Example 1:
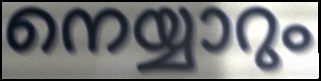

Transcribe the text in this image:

നെയ്യാറും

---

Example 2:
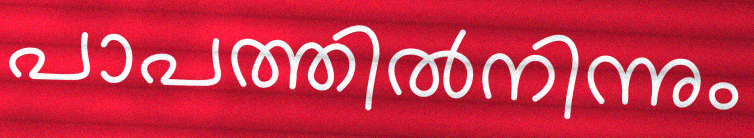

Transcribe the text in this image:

പാപത്തിൽനിന്നും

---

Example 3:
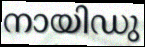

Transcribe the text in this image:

നായിഡു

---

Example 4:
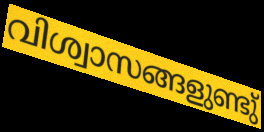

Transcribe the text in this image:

വിശ്വാസങ്ങളുണ്ടു്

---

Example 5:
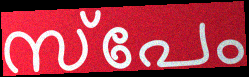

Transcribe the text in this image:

സ്പേം